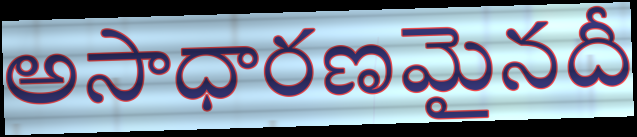
అసాధారణమైనదీ